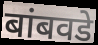
बांबवडे